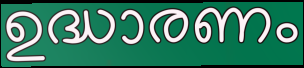
ഉദ്ധാരണം